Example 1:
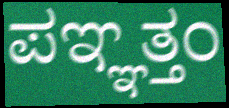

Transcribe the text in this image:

ಪಞ್ಞತ್ತಂ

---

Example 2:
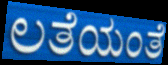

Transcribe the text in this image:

ಲತೆಯಂತೆ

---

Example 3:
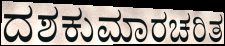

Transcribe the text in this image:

ದಶಕುಮಾರಚರಿತ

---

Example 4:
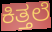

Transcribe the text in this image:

ಕಿತ್ತಲೆ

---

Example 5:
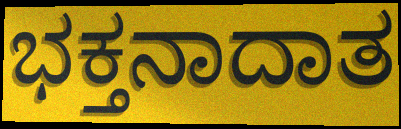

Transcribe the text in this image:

ಭಕ್ತನಾದಾತ